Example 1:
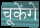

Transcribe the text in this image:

चूकेंगे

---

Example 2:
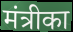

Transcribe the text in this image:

मंत्रीका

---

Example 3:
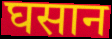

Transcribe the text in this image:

घसान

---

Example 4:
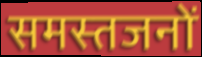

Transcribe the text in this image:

समस्तजनों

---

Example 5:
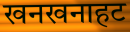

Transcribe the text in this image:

खनखनाहट